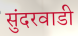
सुंदरवाडी